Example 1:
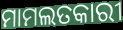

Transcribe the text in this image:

ମାମଲତକାରୀ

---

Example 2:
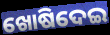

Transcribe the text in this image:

ଖୋଷିଦେଇ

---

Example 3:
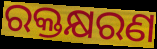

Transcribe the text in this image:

ରକ୍ତକ୍ଷରଣ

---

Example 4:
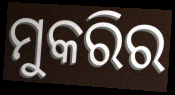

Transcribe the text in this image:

ମୁକରିର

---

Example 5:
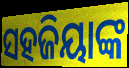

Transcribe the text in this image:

ସହଜିୟାଙ୍କ